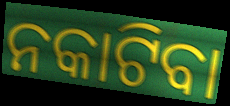
ନକାଟିବା